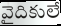
వైదికులే